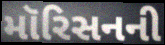
મૉરિસનની